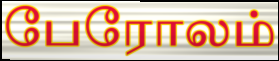
பேரோலம்